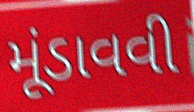
મૂંડાવવી